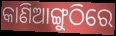
କାଣିଆଙ୍ଗୁଠିରେ